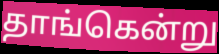
தாங்கென்று